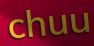
chuu